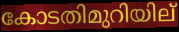
കോടതിമുറിയില്